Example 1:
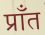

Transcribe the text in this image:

प्राँत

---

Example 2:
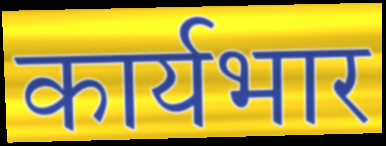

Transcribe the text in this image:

कार्यभार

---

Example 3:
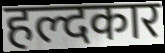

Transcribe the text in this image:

हल्दकार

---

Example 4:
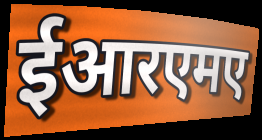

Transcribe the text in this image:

ईआरएमए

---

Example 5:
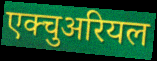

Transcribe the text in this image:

एक्चुअरियल